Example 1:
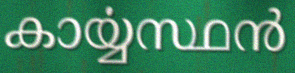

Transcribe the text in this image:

കാൎയ്യസ്ഥൻ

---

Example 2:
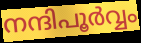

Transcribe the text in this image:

നന്ദിപൂർവ്വം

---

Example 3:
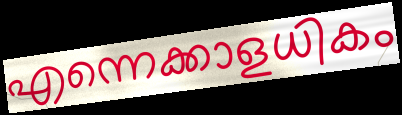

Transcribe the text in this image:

എന്നെക്കാളധികം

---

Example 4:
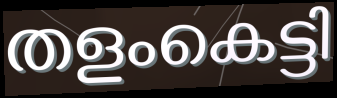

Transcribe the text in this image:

തളംകെട്ടി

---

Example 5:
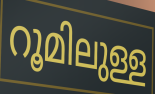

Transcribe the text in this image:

റൂമിലുള്ള